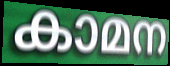
കാമന